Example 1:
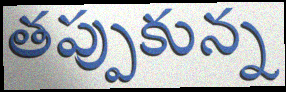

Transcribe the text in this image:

తప్పుకున్న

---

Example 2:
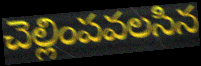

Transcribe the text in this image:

చెల్లింపవలసిన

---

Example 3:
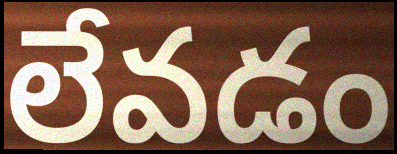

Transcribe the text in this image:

లేవడం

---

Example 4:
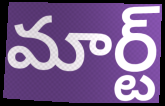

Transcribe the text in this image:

మార్ట్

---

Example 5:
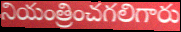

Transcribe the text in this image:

నియంత్రించగలిగారు